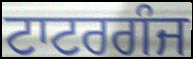
ਟਾਟਰਗੰਜ